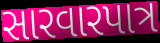
સારવારપાત્ર